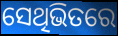
ସେଥିଭିତରେ